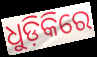
ଧୁଡ଼ିକିରେ